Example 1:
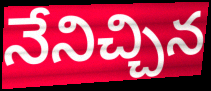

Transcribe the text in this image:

నేనిచ్చిన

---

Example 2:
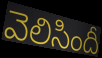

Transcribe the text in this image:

వెలిసిందీ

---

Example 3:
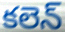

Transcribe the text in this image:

కలెన్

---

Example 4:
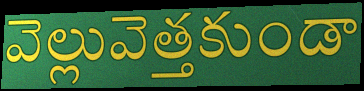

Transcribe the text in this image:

వెల్లువెత్తకుండా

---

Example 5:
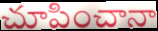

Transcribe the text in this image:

చూపించానా